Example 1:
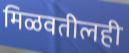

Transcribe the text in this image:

मिळवतीलही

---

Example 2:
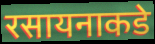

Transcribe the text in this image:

रसायनाकडे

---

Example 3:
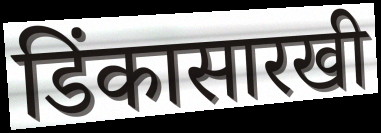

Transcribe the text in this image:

डिंकासारखी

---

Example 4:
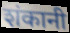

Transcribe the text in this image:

शंकानी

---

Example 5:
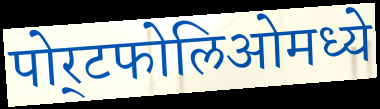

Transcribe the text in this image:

पोर्टफोलिओमध्ये